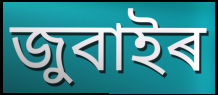
জুবাইৰ